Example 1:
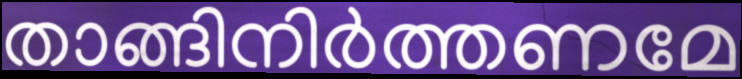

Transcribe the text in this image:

താങ്ങിനിർത്തണമേ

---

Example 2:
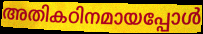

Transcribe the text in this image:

അതികഠിനമായപ്പോൾ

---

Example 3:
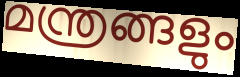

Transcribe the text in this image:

മന്ത്രങ്ങളും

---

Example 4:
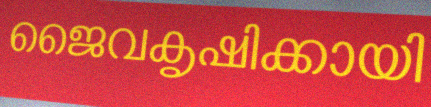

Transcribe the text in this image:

ജൈവകൃഷിക്കായി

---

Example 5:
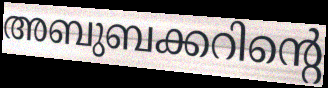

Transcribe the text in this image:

അബുബക്കറിന്റെ